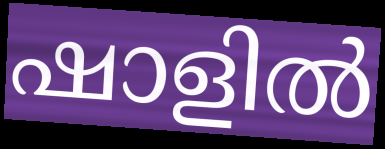
ഷാളിൽ